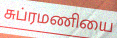
சுப்ரமணியை